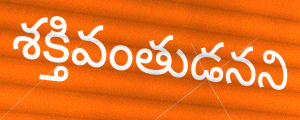
శక్తివంతుడనని